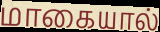
மாகையால்